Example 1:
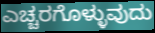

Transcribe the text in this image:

ಎಚ್ಚರಗೊಳ್ಳುವುದು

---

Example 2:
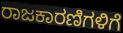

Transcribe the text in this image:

ರಾಜಕಾರಣಿಗಳಿಗೆ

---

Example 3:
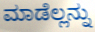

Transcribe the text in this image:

ಮಾಡೆಲ್ಲನ್ನು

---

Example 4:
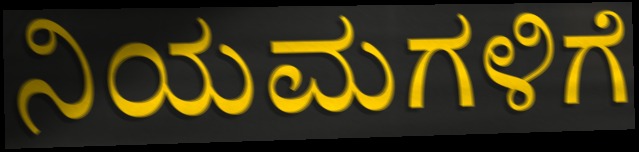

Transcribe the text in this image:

ನಿಯಮಗಳಿಗೆ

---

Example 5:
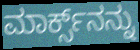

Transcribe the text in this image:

ಮಾರ್ಕ್ಸ್‌ನನ್ನು